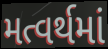
મત્વર્થમાં